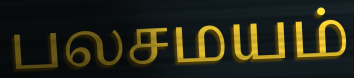
பலசமயம்